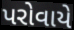
પરોવાયે